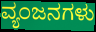
ವ್ಯಂಜನಗಳು